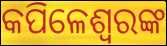
କପିଳେଶ୍ବରଙ୍କ